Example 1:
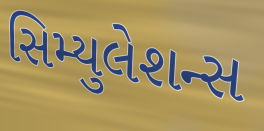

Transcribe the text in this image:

સિમ્યુલેશન્સ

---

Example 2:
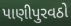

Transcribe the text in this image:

પાણીપુરવઠો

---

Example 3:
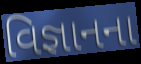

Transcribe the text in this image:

વિજ્ઞાનના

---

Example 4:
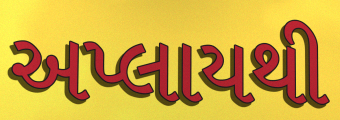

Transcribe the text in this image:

અપ્લાયથી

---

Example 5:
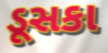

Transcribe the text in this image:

ડૂસકા